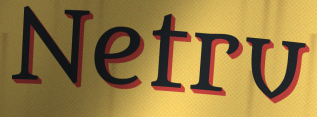
Netru